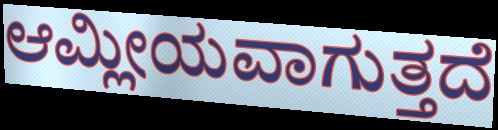
ಆಮ್ಲೀಯವಾಗುತ್ತದೆ